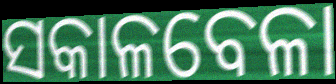
ସକାଳବେଳା